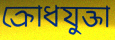
ক্রোধযুক্তা